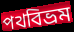
পথবিভ্রম